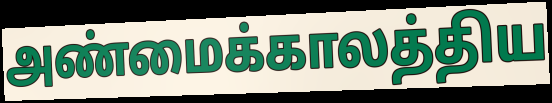
அண்மைக்காலத்திய